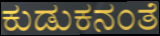
ಕುಡುಕನಂತೆ